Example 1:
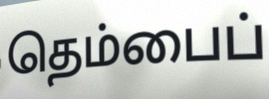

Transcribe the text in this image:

தெம்பைப்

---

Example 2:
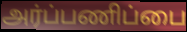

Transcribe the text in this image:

அர்ப்பணிப்பை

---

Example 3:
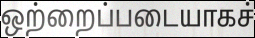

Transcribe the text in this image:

ஒற்றைப்படையாகச்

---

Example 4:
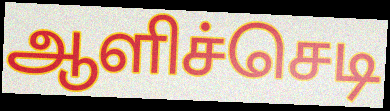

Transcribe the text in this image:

ஆளிச்செடி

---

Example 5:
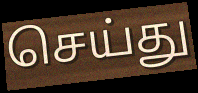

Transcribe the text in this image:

செய்து